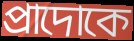
প্রাদোকে